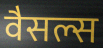
वैसल्स